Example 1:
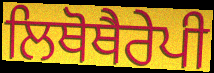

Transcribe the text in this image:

ਲਿਥੋਥੈਰੇਪੀ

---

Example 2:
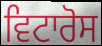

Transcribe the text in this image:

ਵਿਟਾਰੋਸ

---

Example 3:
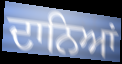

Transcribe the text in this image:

ਦਾਨਿਆਂ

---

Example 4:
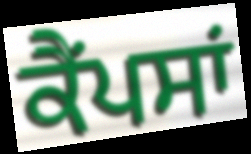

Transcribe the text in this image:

ਕੈਂਪਸਾਂ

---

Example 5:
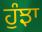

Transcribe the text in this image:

ਹੁੰਝਾ